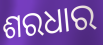
ଶରଧାର